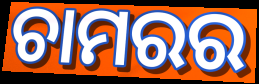
ଚାମରର